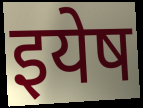
इयेष